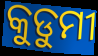
କୁଡୁମୀ